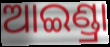
ଆଇଣ୍ଡ୍ରା